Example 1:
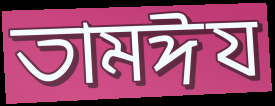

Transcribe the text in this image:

তামঈয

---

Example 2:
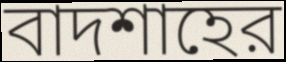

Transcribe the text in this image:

বাদশাহের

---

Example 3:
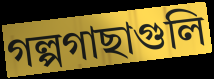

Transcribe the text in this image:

গল্পগাছাগুলি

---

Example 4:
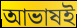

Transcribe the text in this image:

আভাষই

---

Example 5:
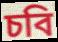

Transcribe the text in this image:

চবি